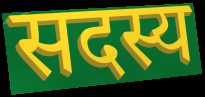
सदस्य